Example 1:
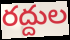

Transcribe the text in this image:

రద్దుల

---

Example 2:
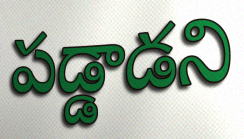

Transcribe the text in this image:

పడ్డాడని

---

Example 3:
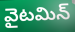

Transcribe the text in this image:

వైటమిన్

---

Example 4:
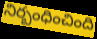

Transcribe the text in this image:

నిర్బంధించింది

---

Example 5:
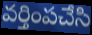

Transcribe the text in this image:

వర్తింపచేసి